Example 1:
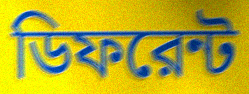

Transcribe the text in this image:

ডিফরেন্ট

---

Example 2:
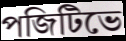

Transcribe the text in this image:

পজিটিভে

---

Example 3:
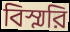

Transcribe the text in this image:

বিস্মরি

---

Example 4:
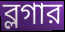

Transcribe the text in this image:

ব্লগার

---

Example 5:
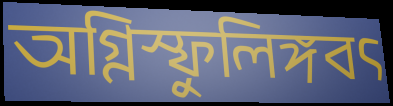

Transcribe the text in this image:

অগ্নিস্ফুলিঙ্গবৎ